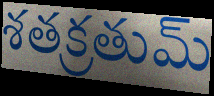
శతక్రతుమ్